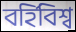
বর্হিবিশ্ব